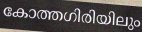
കോത്തഗിരിയിലും